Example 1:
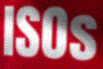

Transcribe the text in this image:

ISOs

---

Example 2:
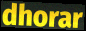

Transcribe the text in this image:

dhorar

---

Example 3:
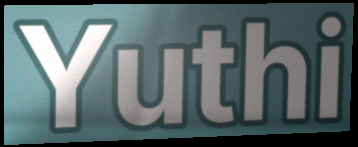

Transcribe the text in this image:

Yuthi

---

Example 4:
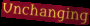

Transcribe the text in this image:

Unchanging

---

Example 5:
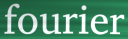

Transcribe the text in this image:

fourier